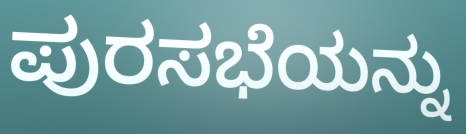
ಪುರಸಭೆಯನ್ನು